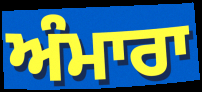
ਅੰਮਾਰਾ